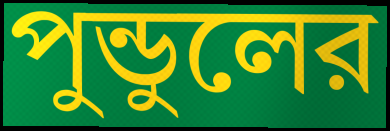
পুন্ডুলের